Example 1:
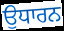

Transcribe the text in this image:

ਉਧਾਰਨ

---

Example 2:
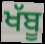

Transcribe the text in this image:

ਖੱਬੂ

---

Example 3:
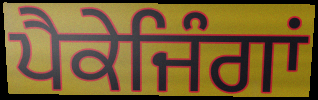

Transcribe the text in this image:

ਪੈਕੇਜਿੰਗਾਂ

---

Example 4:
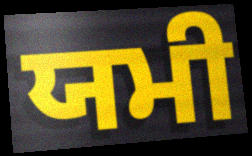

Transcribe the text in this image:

ਯਮੀ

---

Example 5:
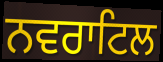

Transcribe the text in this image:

ਨਵਰਾਟਿਲ